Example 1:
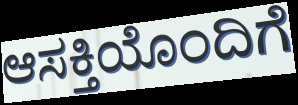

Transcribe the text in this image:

ಆಸಕ್ತಿಯೊಂದಿಗೆ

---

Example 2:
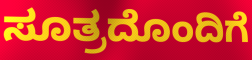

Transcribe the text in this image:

ಸೂತ್ರದೊಂದಿಗೆ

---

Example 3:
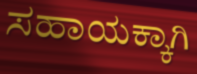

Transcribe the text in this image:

ಸಹಾಯಕ್ಕಾಗಿ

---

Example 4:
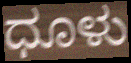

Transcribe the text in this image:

ಧೂಳು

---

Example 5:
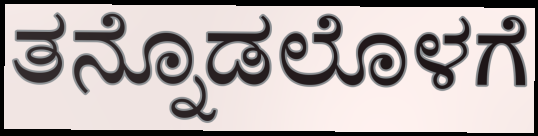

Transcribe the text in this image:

ತನ್ನೊಡಲೊಳಗೆ